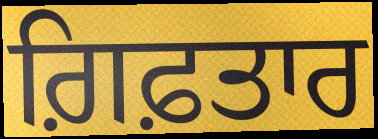
ਗ਼ਿਫ਼ਤਾਰ